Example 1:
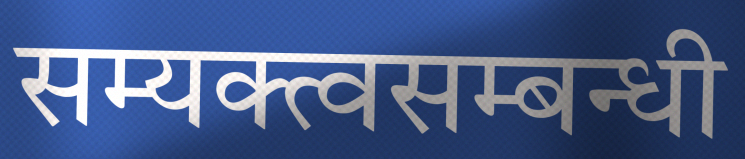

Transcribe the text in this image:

सम्यक्त्वसम्बन्धी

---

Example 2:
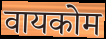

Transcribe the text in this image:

वायकोम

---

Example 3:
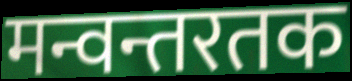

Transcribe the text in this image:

मन्वन्तरतक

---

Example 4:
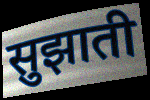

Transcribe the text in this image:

सुझाती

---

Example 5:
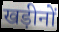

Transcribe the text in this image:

खड़ीनों